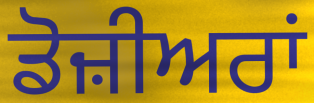
ਡੋਜ਼ੀਅਰਾਂ